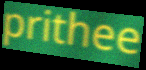
prithee